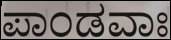
ಪಾಂಡವಾಃ